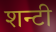
शन्टी